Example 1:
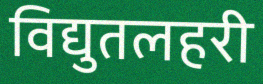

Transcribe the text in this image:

विद्युतलहरी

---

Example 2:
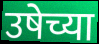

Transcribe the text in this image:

उषेच्या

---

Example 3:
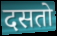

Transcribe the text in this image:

दसतो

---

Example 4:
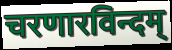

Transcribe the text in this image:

चरणारविन्दम्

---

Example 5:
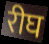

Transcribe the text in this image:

रीघ